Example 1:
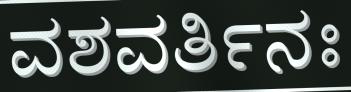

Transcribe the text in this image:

ವಶವರ್ತಿನಃ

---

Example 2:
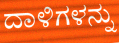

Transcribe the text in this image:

ದಾಳಿಗಳನ್ನು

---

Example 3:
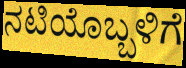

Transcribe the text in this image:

ನಟಿಯೊಬ್ಬಳಿಗೆ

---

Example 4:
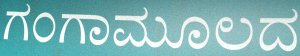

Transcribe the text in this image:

ಗಂಗಾಮೂಲದ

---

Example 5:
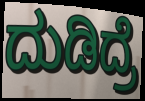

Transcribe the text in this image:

ದುಡಿದ್ರೆ